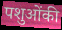
पशुओंकी